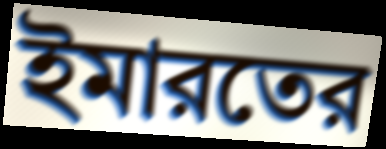
ইমারতের